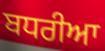
ਬਧਰੀਆ